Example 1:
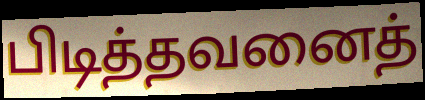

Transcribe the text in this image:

பிடித்தவனைத்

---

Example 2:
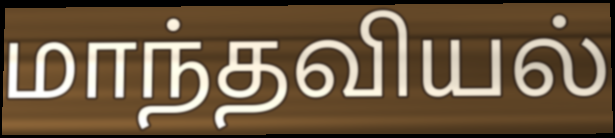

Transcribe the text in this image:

மாந்தவியல்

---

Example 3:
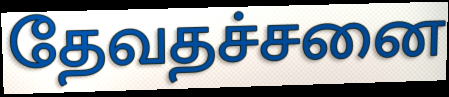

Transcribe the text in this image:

தேவதச்சனை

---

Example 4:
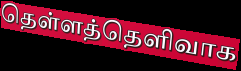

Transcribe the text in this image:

தெள்ளத்தெளிவாக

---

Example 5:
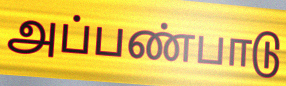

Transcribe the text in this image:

அப்பண்பாடு